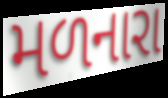
મળનારા